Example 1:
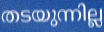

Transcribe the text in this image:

തടയുന്നില്ല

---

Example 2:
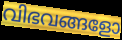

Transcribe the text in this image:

വിഭവങ്ങളോ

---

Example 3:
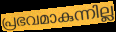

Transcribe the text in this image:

പ്രഭവമാകുന്നില്ല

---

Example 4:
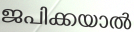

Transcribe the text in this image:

ജപിക്കയാൽ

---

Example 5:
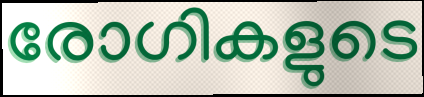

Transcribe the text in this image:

രോഗികളുടെ